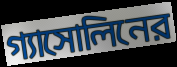
গ্যাসোলিনের